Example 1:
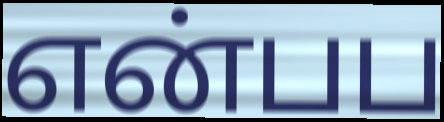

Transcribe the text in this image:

என்பப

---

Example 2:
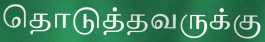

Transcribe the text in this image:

தொடுத்தவருக்கு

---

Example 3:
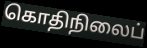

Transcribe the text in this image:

கொதிநிலைப்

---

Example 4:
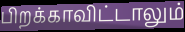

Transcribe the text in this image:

பிறக்காவிட்டாலும்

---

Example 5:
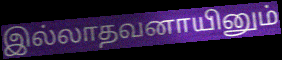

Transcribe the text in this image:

இல்லாதவனாயினும்